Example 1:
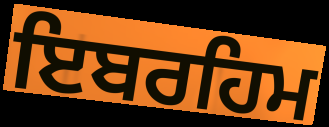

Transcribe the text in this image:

ਇਬਰਹਿਮ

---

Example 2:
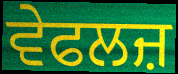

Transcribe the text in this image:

ਵੇਫਲਜ਼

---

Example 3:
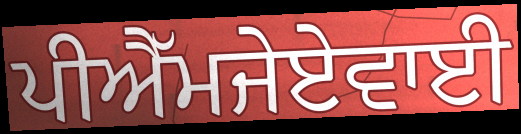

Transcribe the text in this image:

ਪੀਐੱਮਜੇਏਵਾਈ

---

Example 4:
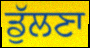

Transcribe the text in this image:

ਡੁੱਲਣਾ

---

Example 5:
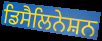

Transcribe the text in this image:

ਡਿਸੈਲਿਨੇਸ਼ਨ